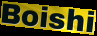
Boishi